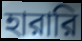
হারারি